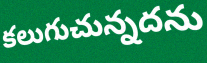
కలుగుచున్నదను